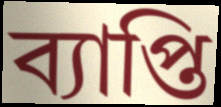
ব্যাপ্তি